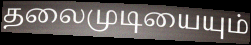
தலைமுடியையும்